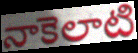
నాకెలాటి